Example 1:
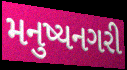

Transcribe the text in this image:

મનુષ્યનગરી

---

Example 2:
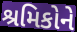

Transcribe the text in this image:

શ્રમિકોને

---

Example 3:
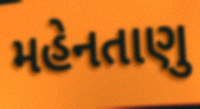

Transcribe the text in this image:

મહેનતાણુ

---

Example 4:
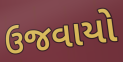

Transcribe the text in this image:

ઉજવાયો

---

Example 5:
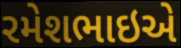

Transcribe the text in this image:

રમેશભાઇએ